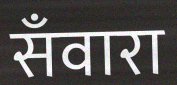
सँवारा